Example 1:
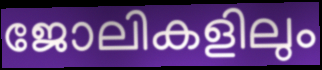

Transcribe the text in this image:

ജോലികളിലും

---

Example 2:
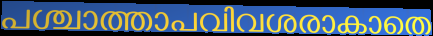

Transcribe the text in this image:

പശ്ചാത്താപവിവശരാകാതെ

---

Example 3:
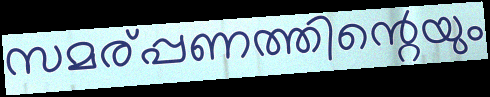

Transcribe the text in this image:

സമര്പ്പണത്തിന്റെയും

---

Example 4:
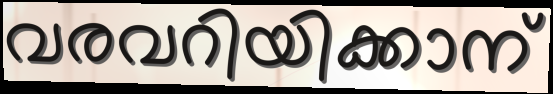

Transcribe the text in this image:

വരവറിയിക്കാന്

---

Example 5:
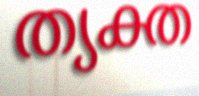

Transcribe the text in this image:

ത്യക്ത